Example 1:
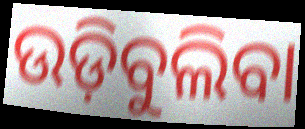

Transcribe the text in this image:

ଉଡ଼ିବୁଲିବା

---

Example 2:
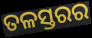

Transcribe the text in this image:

ତଳସ୍ତରର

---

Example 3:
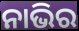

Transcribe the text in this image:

ନାଭିର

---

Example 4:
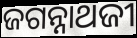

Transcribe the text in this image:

ଜଗନ୍ନାଥଜୀ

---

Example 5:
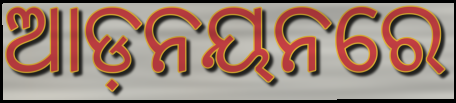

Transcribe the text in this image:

ଆଡ଼ନୟନରେ